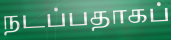
நடப்பதாகப்